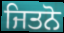
ਜਿਤਨੋ